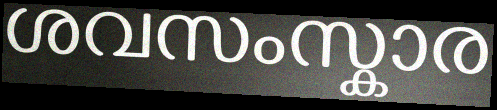
ശവസംസ്കാര